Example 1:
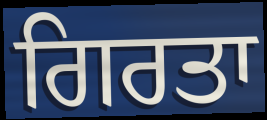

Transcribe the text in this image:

ਗਿਰਤਾ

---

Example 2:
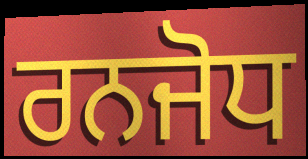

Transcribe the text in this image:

ਰਨਜੋਧ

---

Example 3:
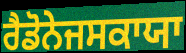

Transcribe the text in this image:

ਰੈਡੋਨੇਜਸਕਾਯਾ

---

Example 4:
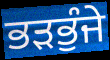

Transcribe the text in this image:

ਭੜਭੁੰਜੇ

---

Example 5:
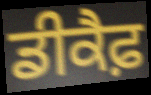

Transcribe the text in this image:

ਡੀਕੈਫ਼